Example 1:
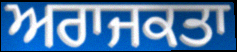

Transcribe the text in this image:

ਅਰਾਜਕਤਾ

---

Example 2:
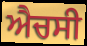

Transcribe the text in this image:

ਐਚਸੀ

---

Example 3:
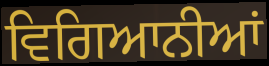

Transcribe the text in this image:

ਵਿਗਿਆਨੀਆਂ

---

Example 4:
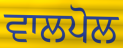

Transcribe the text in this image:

ਵਾਲਪੋਲ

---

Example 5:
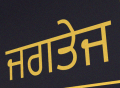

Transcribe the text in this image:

ਜਗਤੇਜ